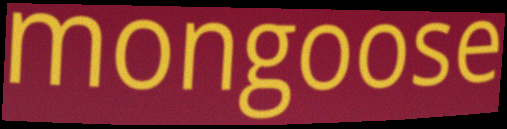
mongoose